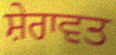
ਸ਼ੇਰਾਵਤ